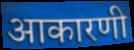
आकारणी